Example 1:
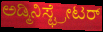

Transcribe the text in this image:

ಅಡ್ಮಿನಿಸ್ಟ್ರೇಟರ್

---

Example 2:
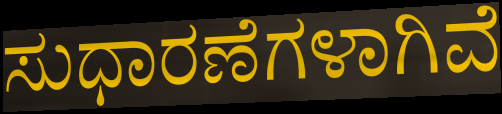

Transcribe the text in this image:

ಸುಧಾರಣೆಗಳಾಗಿವೆ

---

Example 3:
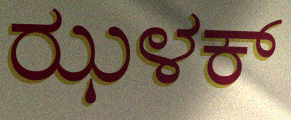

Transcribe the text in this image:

ಝಳಕ್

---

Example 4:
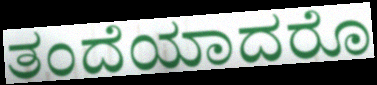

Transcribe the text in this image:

ತಂದೆಯಾದರೊ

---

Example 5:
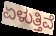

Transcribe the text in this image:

ಏಳುತ್ತಿವೆ